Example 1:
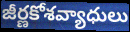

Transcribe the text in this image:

జీర్ణకోశవ్యాధులు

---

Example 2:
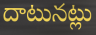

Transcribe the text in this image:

దాటునట్లు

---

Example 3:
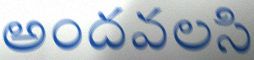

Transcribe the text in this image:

అందవలసి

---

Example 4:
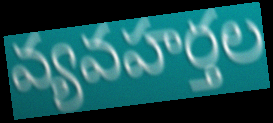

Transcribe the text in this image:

వ్యవహర్తల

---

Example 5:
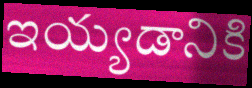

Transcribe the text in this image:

ఇయ్యడానికి